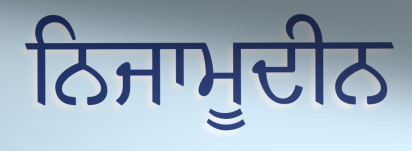
ਨਿਜਾਮੂਦੀਨ